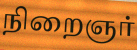
நிறைஞர்